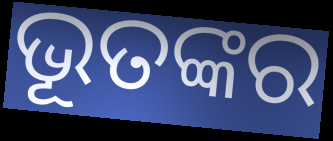
ଭୂତଙ୍କର